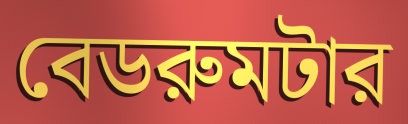
বেডরুমটার